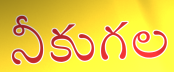
నీకుగల